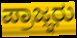
ಪ್ರಾಜ್ಞರು